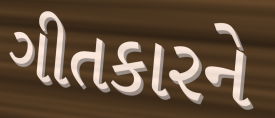
ગીતકારને